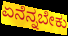
ಏನೆನ್ನಬೇಕು